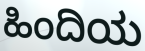
ಹಿಂದಿಯ